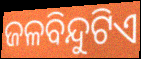
ଜଳବିନ୍ଦୁଟିଏ